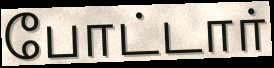
போட்டார்